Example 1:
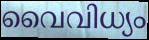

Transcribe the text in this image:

വൈവിധ്യം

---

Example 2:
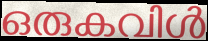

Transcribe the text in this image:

ഒരുകവിൾ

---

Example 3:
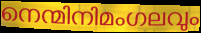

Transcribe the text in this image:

നെന്മിനിമംഗലവും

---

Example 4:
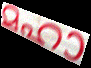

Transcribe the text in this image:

മഹാ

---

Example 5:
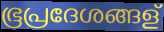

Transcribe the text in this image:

ഭൂപ്രദേശങ്ങള്